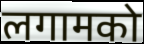
लगामको